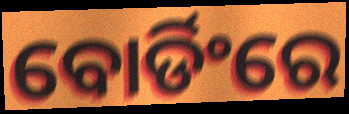
ବୋର୍ଡିଂରେ